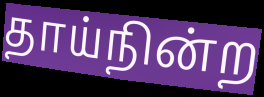
தாய்நின்ற